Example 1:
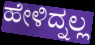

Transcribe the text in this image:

ಹೇಳಿದ್ನಲ್ಲ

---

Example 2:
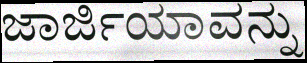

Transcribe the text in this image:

ಜಾರ್ಜಿಯಾವನ್ನು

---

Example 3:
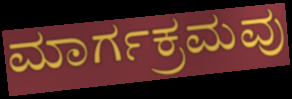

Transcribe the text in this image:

ಮಾರ್ಗಕ್ರಮವು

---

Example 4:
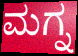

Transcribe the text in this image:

ಮಗ್ನ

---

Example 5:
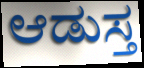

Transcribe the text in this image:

ಆಡುಸ್ತ